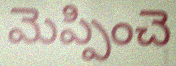
మెప్పించె